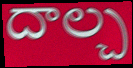
దాల్చ